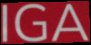
IGA